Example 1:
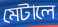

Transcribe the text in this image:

মেটালে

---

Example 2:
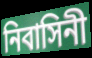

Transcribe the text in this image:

নিবাসিনী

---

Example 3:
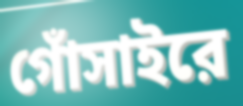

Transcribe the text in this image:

গোঁসাইরে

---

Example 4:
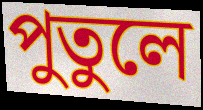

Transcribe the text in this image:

পুতুলে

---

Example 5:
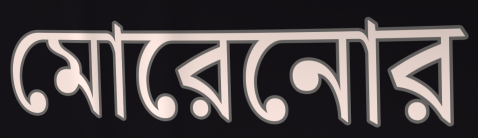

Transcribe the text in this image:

মোরেনোর